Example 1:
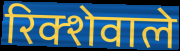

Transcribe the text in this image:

रिक्‍शेवाले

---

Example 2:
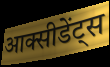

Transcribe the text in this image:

आक्सीडेंट्स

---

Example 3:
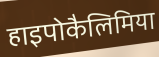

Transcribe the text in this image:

हाइपोकैलिमिया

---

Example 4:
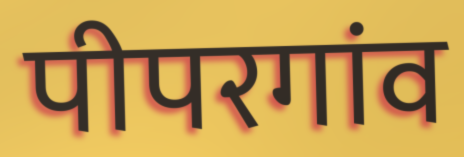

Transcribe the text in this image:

पीपरगांव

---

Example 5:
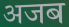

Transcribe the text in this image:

अजब